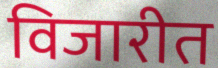
विजारीत